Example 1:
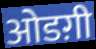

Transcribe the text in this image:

ओडग़ी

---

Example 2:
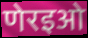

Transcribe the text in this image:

णेरइओ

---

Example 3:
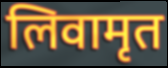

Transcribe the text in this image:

लिवामृत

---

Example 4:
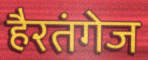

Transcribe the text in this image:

हैरतंगेज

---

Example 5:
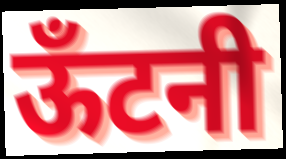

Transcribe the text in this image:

ऊँटनी